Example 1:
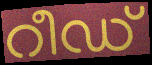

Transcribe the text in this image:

റീഡ്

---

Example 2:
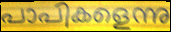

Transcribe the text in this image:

പാപികളെന്നു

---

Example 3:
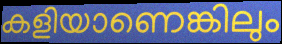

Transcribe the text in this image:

കളിയാണെങ്കിലും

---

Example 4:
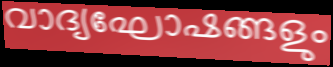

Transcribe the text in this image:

വാദ്യഘോഷങ്ങളും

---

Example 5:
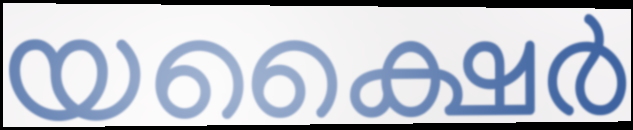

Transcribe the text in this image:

യക്ഷൈർ